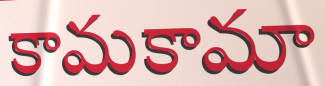
కామకామా